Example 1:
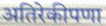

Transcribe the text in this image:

अतिरेकीपणा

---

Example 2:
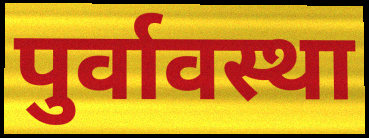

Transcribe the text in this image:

पुर्वावस्था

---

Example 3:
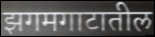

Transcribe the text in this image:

झगमगाटातील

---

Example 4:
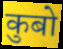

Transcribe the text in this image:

कुबो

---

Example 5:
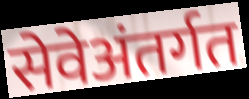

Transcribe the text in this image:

सेवेअंतर्गत